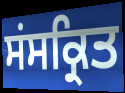
ਸਂਸਕ੍ਰਿਤ